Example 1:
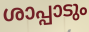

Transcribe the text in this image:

ശാപ്പാടും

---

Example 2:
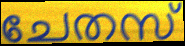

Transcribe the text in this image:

ചേതസ്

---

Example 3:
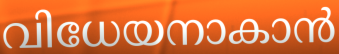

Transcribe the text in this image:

വിധേയനാകാൻ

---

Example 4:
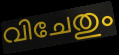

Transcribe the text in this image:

വിചേതും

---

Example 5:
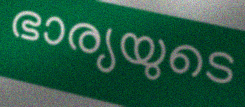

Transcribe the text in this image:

ഭാര്യയുടെ